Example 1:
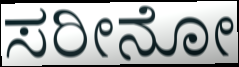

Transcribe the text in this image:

ಸರೀನೋ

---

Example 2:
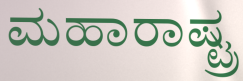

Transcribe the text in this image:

ಮಹಾರಾಷ್ಟ್ರ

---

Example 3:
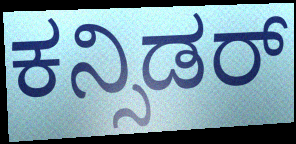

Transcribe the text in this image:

ಕನ್ಸಿಡರ್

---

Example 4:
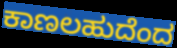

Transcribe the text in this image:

ಕಾಣಲಹುದೆಂದ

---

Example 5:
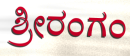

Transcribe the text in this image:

ಶ್ರೀರಂಗಂ